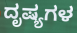
ದೃಷ್ಯಗಳ